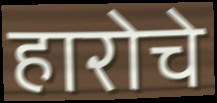
हारोचे